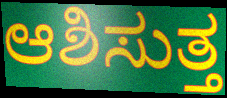
ಆಶಿಸುತ್ತ